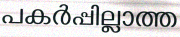
പകർപ്പില്ലാത്ത